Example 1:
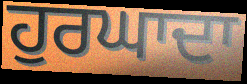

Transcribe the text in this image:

ਹੁਰਘਾਦਾ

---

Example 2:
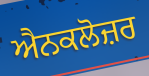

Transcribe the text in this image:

ਐਨਕਲੋਜ਼ਰ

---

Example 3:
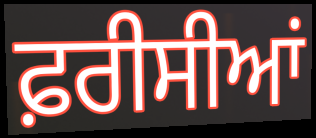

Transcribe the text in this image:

ਫ਼ਰੀਸੀਆਂ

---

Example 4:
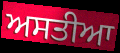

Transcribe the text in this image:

ਅਸਤੀਆ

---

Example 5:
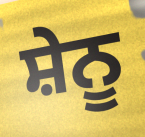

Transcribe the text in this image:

ਸ਼ੇਨੂ